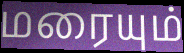
மரையும்